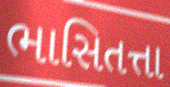
ભાસિતત્તા